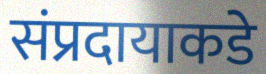
संप्रदायाकडे